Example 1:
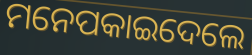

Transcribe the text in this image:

ମନେପକାଇଦେଲେ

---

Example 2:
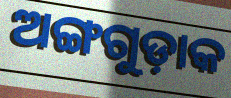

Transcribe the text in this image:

ଅଙ୍ଗଗୁଡ଼ାକ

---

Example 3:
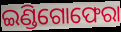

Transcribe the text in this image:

ଇଣ୍ଡିଗୋଫେରା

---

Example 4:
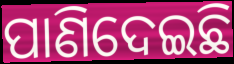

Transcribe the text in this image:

ପାଣିଦେଇଛି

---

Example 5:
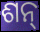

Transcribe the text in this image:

ଶନ୍